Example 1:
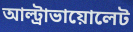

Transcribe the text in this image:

আল্ট্রাভায়োলেট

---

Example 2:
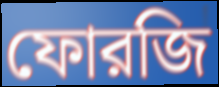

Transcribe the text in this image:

ফোরজি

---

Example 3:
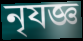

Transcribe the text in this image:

নৃযজ্ঞ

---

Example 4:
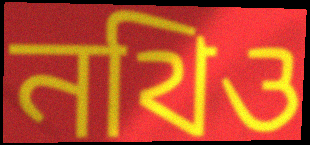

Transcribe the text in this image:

নথিও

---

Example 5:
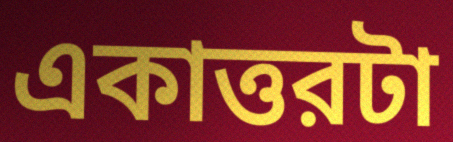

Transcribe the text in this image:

একাত্তরটা